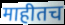
माहीतच